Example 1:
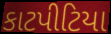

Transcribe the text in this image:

કાટપીટિયા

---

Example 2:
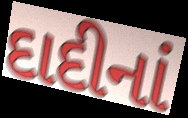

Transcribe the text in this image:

દાદીનાં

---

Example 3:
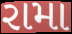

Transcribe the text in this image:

રામા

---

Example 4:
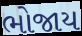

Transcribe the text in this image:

ભોજાય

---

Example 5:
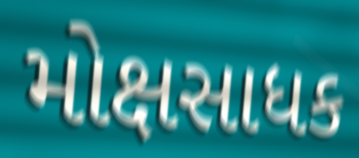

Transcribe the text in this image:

મોક્ષસાધક